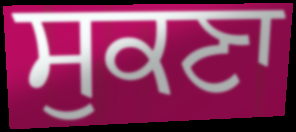
ਸੁਕਣਾ